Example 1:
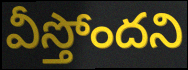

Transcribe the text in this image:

వీస్తోందని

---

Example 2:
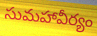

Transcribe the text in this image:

సుమహావీర్యం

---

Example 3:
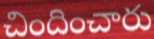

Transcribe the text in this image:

చిందించారు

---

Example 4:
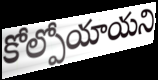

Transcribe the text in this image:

కోల్పోయాయని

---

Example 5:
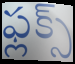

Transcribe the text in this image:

ఫ్లక్స్